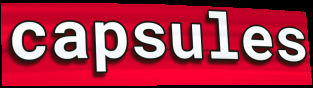
capsules